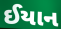
ઈયાન